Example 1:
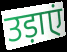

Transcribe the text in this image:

उड़ाएं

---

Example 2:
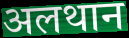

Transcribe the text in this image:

अलथान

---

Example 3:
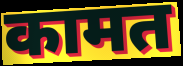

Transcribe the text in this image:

कामत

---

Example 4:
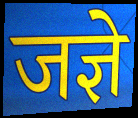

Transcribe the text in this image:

जज्ञे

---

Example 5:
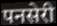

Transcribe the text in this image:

पनसेरी